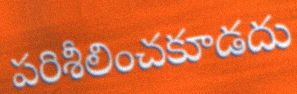
పరిశీలించకూడదు